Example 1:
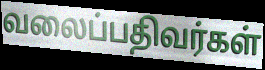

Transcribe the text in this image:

வலைப்பதிவர்கள்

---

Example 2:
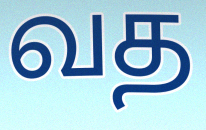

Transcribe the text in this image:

வத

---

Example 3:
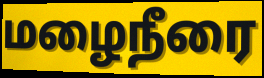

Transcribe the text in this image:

மழைநீரை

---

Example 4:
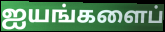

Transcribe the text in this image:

ஐயங்களைப்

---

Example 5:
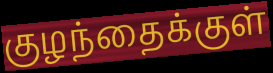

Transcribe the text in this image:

குழந்தைக்குள்